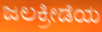
ಜಲಕ್ರೀಡೆಯ